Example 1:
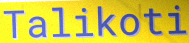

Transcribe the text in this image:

Talikoti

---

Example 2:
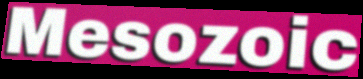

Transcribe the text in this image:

Mesozoic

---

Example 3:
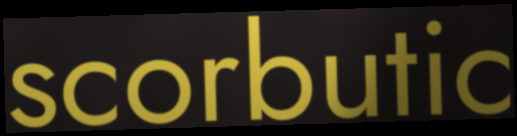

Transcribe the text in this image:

scorbutic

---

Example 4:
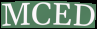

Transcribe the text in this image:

MCED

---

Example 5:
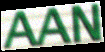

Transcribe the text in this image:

AAN